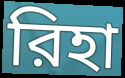
রিহা